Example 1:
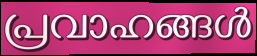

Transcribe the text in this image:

പ്രവാഹങ്ങൾ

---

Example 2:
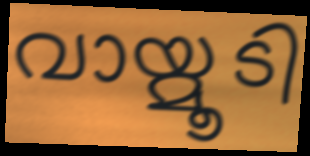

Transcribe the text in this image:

വായ്മൂടി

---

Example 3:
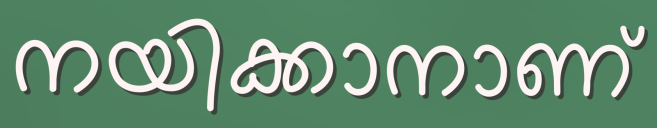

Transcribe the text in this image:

നയിക്കാനാണ്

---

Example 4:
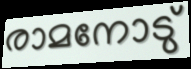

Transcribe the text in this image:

രാമനോടു്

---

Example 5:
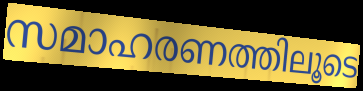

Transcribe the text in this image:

സമാഹരണത്തിലൂടെ